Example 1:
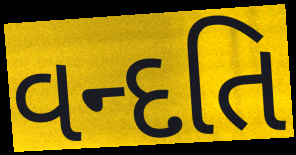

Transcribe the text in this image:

વન્દતિ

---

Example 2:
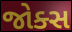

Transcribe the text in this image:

જોક્સ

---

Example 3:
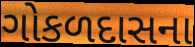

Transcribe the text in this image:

ગોકળદાસના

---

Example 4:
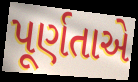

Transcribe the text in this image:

પૂર્ણતાએ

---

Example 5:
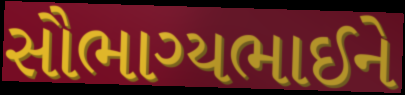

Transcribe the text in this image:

સૌભાગ્યભાઈને